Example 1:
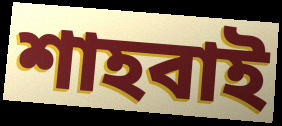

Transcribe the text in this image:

শাহবাই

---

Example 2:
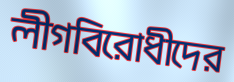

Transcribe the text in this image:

লীগবিরোধীদের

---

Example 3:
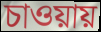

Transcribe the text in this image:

চাওয়ায়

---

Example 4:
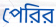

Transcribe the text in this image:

পেরির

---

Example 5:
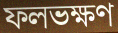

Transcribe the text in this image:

ফলভক্ষণ